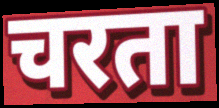
चरता